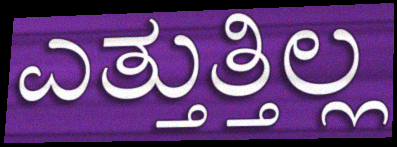
ಎತ್ತುತ್ತಿಲ್ಲ